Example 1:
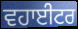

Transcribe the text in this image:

ਵਹਾਈਟਰ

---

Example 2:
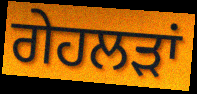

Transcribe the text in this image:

ਗੇਹਲੜਾਂ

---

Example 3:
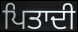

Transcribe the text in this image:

ਪਿਤਾਦੀ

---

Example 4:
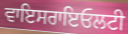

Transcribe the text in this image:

ਵਾਇਸਰਾਇਓਲਟੀ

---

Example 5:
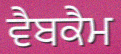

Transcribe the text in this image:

ਵੈਬਕੈਮ